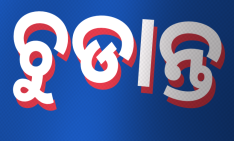
ଚୁଡାନ୍ତ